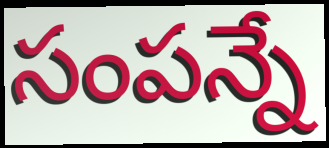
సంపన్నే